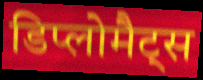
डिप्लोमैट्स